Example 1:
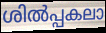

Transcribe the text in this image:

ശിൽപ്പകലാ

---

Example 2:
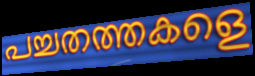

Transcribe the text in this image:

പച്ചതത്തകളെ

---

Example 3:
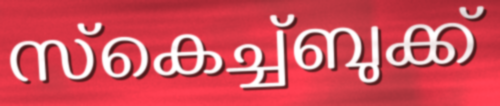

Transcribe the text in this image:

സ്‌കെച്ച്ബുക്ക്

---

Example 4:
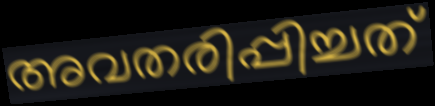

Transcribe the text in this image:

അവതരിപ്പിച്ചത്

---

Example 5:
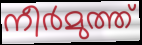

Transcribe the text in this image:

നീർമുത്ത്